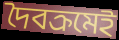
দৈবক্রমেই